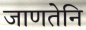
जाणतेनि